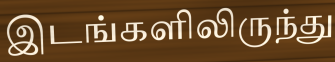
இடங்களிலிருந்து